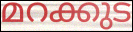
മറക്കുട